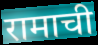
रामाची